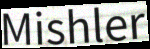
Mishler